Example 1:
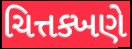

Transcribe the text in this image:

ચિત્તક્ખણે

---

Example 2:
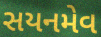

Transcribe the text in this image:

સયનમેવ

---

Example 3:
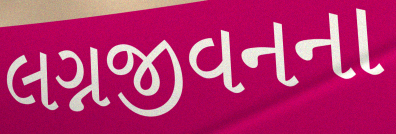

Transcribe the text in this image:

લગ્નજીવનના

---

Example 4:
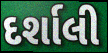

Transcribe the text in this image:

દર્શાલી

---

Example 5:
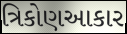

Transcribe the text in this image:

ત્રિકોણઆકાર